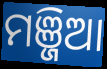
ମଞ୍ଜିଆ